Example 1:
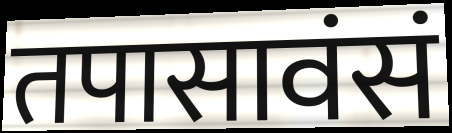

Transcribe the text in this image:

तपासावंसं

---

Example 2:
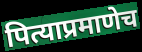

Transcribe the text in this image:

पित्याप्रमाणेच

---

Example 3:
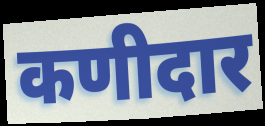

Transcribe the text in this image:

कणीदार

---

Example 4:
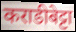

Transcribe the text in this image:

कराडीबेट्टा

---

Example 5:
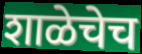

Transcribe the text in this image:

शाळेचेच